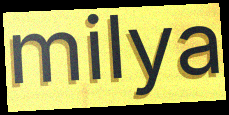
milya